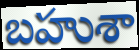
బహుశా